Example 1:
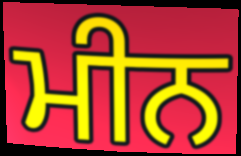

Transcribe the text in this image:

ਮੀਨ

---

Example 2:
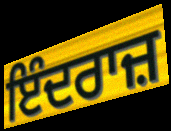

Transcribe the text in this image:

ਇੰਦਰਾਜ਼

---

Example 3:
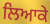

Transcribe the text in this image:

ਲਿਆਕੇ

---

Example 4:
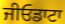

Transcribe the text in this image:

ਜੀਓਡਾਟਾ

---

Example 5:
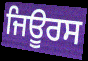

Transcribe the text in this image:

ਜਿਊਰਸ